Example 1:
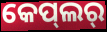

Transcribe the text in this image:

କେପ୍‌ଲର୍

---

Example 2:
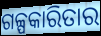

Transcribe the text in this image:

ଗଳ୍ପକାରିତାର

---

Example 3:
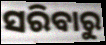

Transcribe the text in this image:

ସରିବାରୁ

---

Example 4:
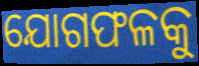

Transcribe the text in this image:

ଯୋଗଫଳକୁ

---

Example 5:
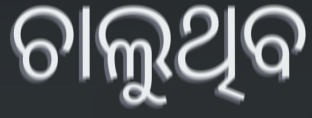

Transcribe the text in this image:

ଚାଲୁଥିବ